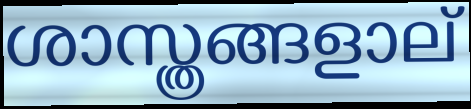
ശാസ്ത്രങ്ങളാല്